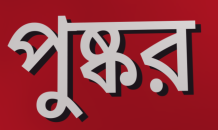
পুষ্কর